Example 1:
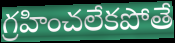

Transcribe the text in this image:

గ్రహించలేకపోతే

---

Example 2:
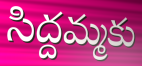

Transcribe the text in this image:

సిద్దమ్మకు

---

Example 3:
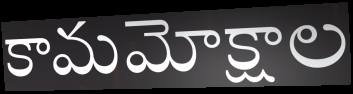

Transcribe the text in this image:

కామమోక్షాల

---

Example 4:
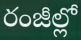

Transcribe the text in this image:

రంజీల్లో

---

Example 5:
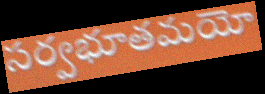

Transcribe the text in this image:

సర్వభూతమయో